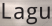
Lagu